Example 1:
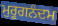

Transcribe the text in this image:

ਮੁਰੂਗਨੰਦਮ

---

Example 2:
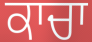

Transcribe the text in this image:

ਕਾਚਾ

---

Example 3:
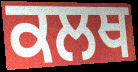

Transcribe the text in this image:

ਕਲਥ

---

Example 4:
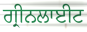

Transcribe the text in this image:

ਗ੍ਰੀਨਲਾਈਟ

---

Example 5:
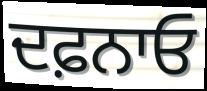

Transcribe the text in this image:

ਦਫ਼ਨਾਓ